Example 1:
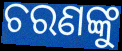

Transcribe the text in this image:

ଚରଣଙ୍କୁ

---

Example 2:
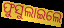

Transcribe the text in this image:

ଫୁସୁଲାଇଲେ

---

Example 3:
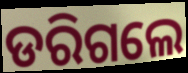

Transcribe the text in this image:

ଡରିଗଲେ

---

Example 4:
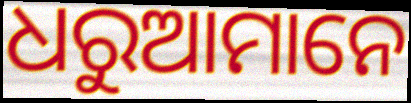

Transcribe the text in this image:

ଧରୁଆମାନେ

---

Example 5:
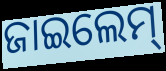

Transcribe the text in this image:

ଜାଇଲେମ୍